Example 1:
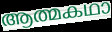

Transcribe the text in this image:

ആത്മകഥാ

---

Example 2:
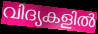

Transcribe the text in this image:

വിദ്യകളിൽ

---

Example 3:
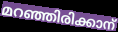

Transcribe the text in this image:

മറഞ്ഞിരിക്കാന്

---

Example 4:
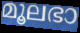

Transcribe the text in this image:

മൂലഭാ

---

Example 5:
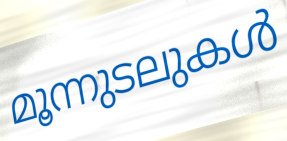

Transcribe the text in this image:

മൂന്നുടലുകൾ